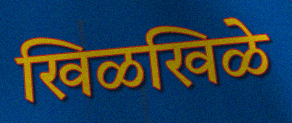
खिळखिळे